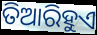
ତିଆରିହୁଏ